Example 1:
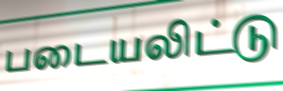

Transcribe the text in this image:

படையலிட்டு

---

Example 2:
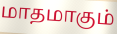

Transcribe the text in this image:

மாதமாகும்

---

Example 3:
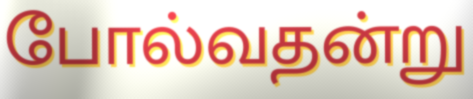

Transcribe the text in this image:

போல்வதன்று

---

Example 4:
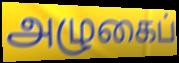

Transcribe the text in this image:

அழுகைப்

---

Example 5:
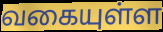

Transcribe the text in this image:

வகையுள்ள